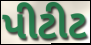
પીટીટ